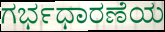
ಗರ್ಭಧಾರಣೆಯ